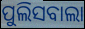
ପୁଲିସବାଲା